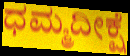
ಧಮ್ಮದೀಕ್ಷೆ